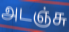
அடஞ்சு